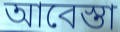
আবেস্তা